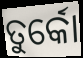
ତୁର୍କୋ